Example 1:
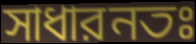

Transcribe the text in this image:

সাধারনতঃ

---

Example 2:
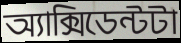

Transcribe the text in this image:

অ্যাক্সিডেন্টটা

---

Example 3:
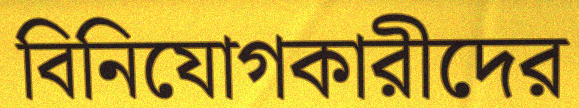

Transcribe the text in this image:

বিনিযোগকারীদের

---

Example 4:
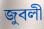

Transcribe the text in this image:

জুবলী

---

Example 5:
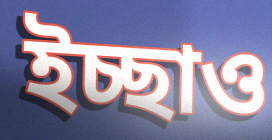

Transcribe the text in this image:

ইচ্ছাও